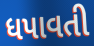
ધપાવતી